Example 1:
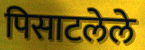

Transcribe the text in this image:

पिसाटलेले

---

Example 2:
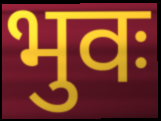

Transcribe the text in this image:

भुवः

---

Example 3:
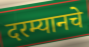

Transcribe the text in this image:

दरम्यानचे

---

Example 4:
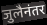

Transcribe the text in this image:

जुलैनंतर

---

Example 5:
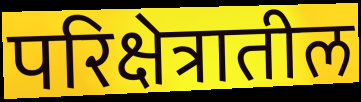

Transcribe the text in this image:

परिक्षेत्रातील